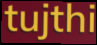
tujthi